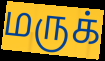
மருக்